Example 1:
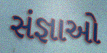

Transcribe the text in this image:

સંજ્ઞાઓ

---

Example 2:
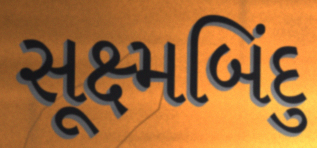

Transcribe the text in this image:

સૂક્ષ્મબિંદુ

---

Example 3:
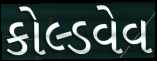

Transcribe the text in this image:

કોલ્ડવેવ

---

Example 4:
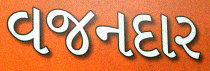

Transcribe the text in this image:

વજનદાર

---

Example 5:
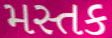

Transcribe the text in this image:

મસ્તક